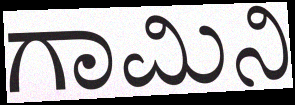
ಗಾಮಿನಿ